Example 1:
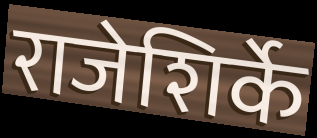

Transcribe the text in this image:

राजेशिर्के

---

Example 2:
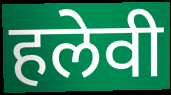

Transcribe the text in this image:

हलेवी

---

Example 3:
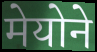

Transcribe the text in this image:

मेयोने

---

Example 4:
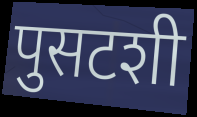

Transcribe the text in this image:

पुसटशी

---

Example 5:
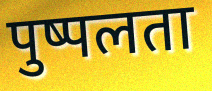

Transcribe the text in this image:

पुष्पलता